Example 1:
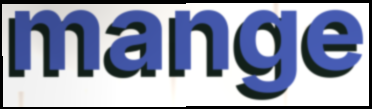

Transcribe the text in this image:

mange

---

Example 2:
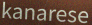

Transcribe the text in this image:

kanarese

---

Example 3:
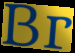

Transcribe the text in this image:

Br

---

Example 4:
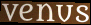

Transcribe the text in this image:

venus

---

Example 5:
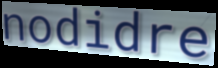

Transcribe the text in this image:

nodidre